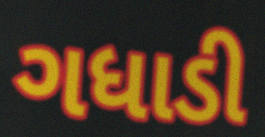
ગધાડી